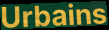
Urbains